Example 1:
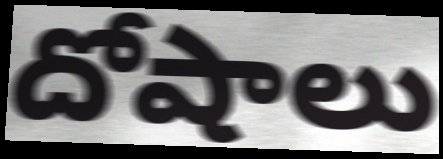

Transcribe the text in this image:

దోషాలు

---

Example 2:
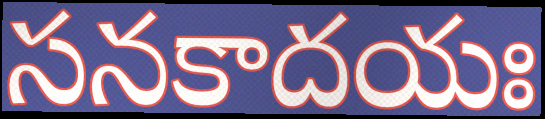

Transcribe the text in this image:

సనకాదయః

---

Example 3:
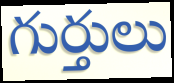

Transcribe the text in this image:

గుర్తులు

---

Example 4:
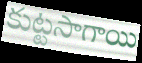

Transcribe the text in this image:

కుట్టసాగాయి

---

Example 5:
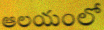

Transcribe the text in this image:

ఆలయంలో